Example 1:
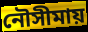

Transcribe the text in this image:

নৌসীমায়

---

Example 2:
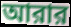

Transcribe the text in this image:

আরার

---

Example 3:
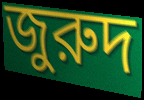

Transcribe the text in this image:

জুরুদ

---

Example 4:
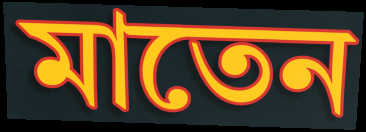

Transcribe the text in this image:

মাতেন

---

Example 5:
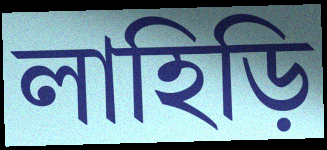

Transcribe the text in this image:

লাহিড়ি